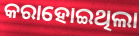
କରାହୋଇଥିଲା